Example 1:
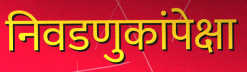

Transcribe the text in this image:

निवडणुकांपेक्षा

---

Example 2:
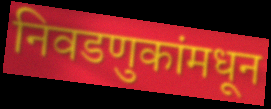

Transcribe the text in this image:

निवडणुकांमधून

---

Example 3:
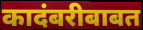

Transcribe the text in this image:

कादंबरीबाबत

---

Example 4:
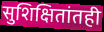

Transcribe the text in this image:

सुशिक्षितांतही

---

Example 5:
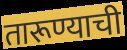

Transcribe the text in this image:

तारूण्याची